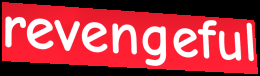
revengeful